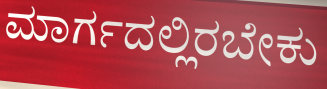
ಮಾರ್ಗದಲ್ಲಿರಬೇಕು